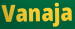
Vanaja